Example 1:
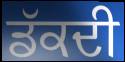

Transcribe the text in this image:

ਡੱਕਦੀ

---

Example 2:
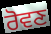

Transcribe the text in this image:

ਰੋਵਣ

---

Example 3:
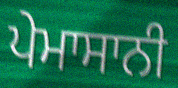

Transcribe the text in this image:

ਪੇਮਾਸਾਨੀ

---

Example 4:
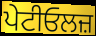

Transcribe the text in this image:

ਪੇਟੀਓਲਜ਼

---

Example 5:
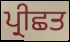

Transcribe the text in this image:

ਪ੍ਰੀਛਤ